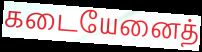
கடையேனைத்